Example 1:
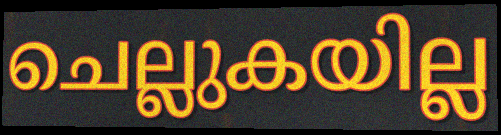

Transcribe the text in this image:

ചെല്ലുകയില്ല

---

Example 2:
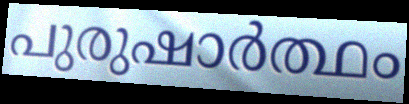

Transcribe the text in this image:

പുരുഷാർത്ഥം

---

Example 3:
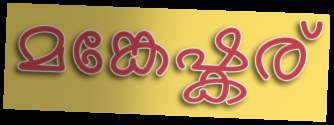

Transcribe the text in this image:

മങ്കേഷ്കര്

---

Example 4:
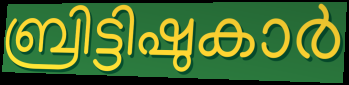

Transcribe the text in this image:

ബ്രിട്ടിഷുകാർ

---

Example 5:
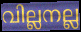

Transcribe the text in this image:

വില്ലനല്ല